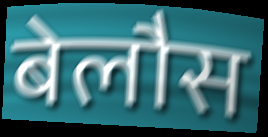
बेलौस